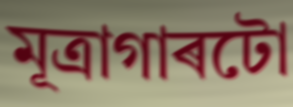
মূত্ৰাগাৰটো